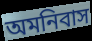
অমনিবাস